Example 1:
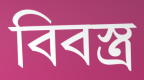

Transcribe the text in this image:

বিবস্ত্র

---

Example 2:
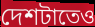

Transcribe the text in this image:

দেশটাতেও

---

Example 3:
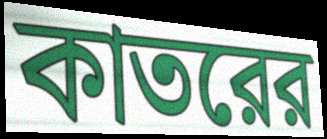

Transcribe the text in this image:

কাতরের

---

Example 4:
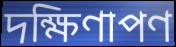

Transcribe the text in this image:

দক্ষিণাপণ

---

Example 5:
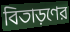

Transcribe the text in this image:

বিতাড়ণের